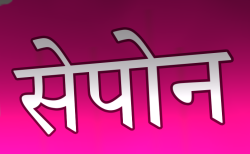
सेपोन